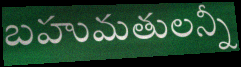
బహుమతులన్నీ